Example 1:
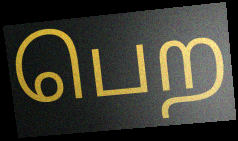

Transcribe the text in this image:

பெற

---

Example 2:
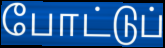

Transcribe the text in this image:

போட்டுப்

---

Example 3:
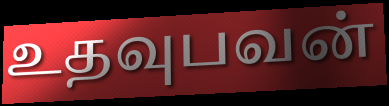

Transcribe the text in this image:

உதவுபவன்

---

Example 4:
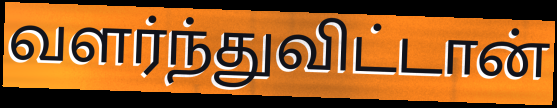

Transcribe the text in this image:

வளர்ந்துவிட்டான்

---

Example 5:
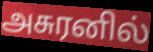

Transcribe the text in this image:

அசுரனில்